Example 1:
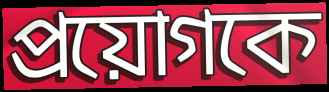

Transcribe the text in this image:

প্রয়োগকে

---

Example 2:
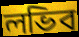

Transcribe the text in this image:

লভিব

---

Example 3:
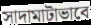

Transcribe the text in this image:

সাদামাটাভাবে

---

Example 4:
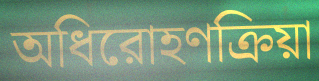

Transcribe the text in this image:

অধিরোহণক্রিয়া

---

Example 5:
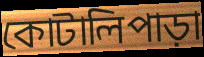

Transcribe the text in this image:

কোটালিপাড়া